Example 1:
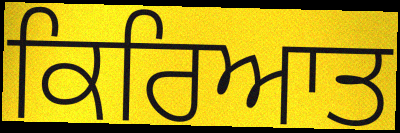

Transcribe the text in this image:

ਕਿਰਿਆਤ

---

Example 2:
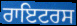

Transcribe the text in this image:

ਰਾਇਟਰਸ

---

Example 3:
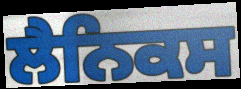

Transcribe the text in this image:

ਲੈਨਿਕਸ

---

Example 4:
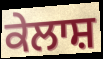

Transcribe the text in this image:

ਕੇਲਾਸ਼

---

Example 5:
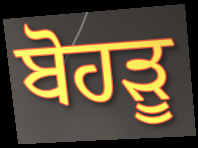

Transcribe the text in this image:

ਬੋਹੜੂ